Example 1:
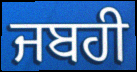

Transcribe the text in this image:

ਜਬਹੀ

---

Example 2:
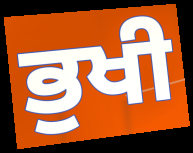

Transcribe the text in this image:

ਭੁਖੀ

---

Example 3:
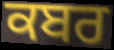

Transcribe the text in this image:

ਕਬਰ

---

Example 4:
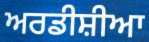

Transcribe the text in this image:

ਅਰਡੀਸ਼ੀਆ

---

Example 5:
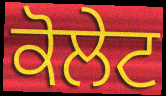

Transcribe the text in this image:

ਕੋਲੇਟ